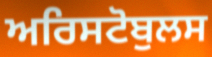
ਅਰਿਸਟੋਬੁਲਸ